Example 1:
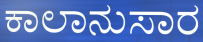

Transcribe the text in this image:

ಕಾಲಾನುಸಾರ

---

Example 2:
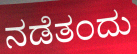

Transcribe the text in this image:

ನಡೆತಂದು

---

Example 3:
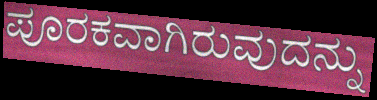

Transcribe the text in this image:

ಪೂರಕವಾಗಿರುವುದನ್ನು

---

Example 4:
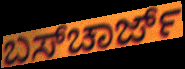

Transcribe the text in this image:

ಬಸ್‌ಚಾರ್ಜ್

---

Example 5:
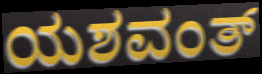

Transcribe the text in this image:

ಯಶವಂತ್